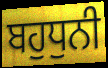
ਬਹੁਧੁਨੀ